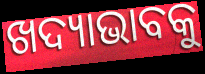
ଖଦ୍ୟାଭାବକୁ